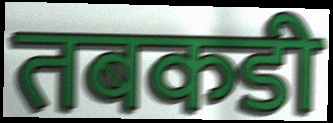
तबकडी